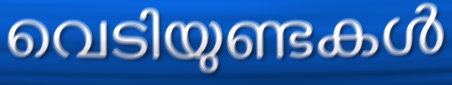
വെടിയുണ്ടകൾ